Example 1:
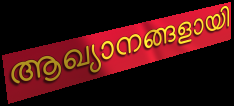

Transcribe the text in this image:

ആഖ്യാനങ്ങളായി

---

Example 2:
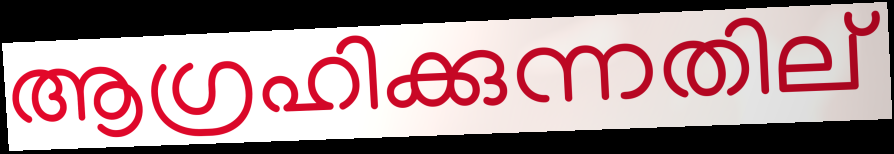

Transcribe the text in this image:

ആഗ്രഹിക്കുന്നതില്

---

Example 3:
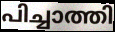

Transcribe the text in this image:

പിച്ചാത്തി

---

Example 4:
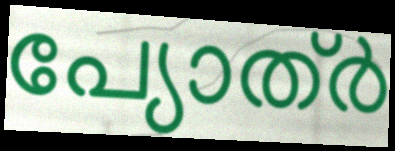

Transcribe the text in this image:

പ്യോത്ർ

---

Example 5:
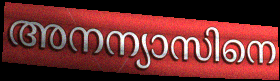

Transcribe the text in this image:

അനന്യാസിനെ